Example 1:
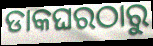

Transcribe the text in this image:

ଡାକଘରଠାରୁ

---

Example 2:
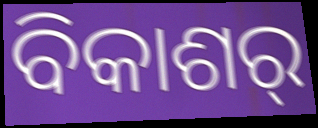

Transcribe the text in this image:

ବିକାଶର୍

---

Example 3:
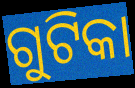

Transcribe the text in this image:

ଗୁଟିକା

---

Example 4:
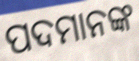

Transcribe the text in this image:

ପଦମାନଙ୍କ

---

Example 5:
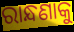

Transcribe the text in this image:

ରାନ୍ଧଣାକୁ